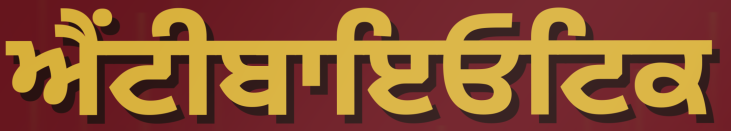
ਐਂਟੀਬਾਇਓਟਿਕ